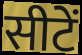
सीटें